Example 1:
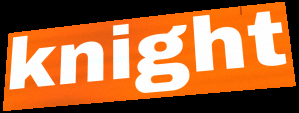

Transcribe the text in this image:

knight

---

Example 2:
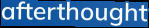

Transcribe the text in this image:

afterthought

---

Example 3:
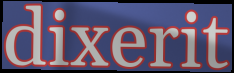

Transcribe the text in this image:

dixerit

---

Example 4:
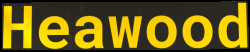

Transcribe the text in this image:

Heawood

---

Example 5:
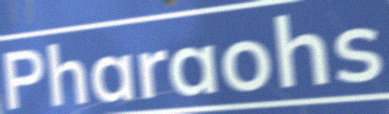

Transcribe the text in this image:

Pharaohs